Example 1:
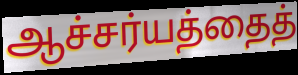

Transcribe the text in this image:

ஆச்சர்யத்தைத்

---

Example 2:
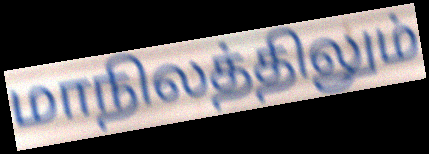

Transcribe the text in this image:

மாநிலத்திலும்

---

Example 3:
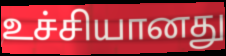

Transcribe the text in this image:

உச்சியானது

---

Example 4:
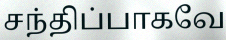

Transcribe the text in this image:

சந்திப்பாகவே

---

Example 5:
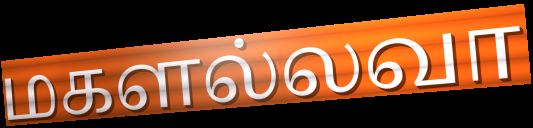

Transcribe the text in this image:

மகளல்லவா